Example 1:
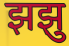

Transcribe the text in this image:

झझु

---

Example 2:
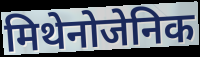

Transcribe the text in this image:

मिथेनोजेनिक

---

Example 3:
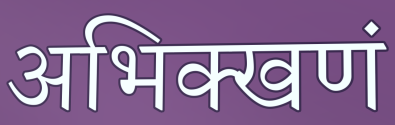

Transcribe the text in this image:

अभिक्खणं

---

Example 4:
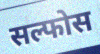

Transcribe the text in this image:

सल्फोस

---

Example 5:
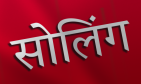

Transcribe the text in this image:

सोलिंग